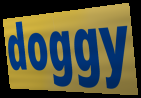
doggy